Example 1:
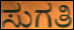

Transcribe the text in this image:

ಸುಗತಿ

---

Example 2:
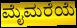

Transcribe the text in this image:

ಮೈಮರೆಯೆ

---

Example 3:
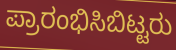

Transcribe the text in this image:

ಪ್ರಾರಂಭಿಸಿಬಿಟ್ಟರು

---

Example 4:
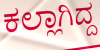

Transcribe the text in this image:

ಕಲ್ಲಾಗಿದ್ದ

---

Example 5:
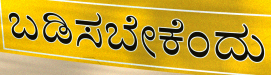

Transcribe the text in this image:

ಬಡಿಸಬೇಕೆಂದು